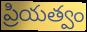
ప్రియత్వం